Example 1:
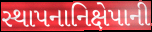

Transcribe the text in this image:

સ્થાપનાનિક્ષેપાની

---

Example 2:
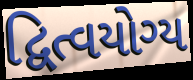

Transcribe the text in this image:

દ્વિત્વયોગ્ય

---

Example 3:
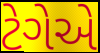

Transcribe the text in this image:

ટેગેએ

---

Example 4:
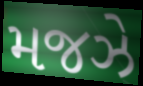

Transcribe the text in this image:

મજઝે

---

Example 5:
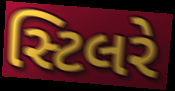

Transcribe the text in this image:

સ્ટિલરે